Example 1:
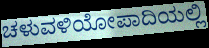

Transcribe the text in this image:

ಚಳುವಳಿಯೋಪಾದಿಯಲ್ಲಿ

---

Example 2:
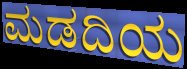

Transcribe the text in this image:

ಮಡದಿಯ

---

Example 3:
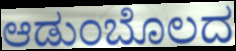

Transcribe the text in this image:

ಆಡುಂಬೊಲದ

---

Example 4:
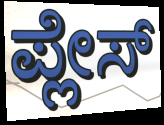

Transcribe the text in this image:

ಪ್ಲೇಸ್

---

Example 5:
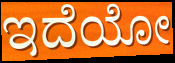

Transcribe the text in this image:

ಇದೆಯೋ